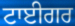
ਟਾਈਗਰ